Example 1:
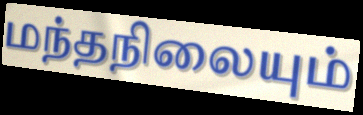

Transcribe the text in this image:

மந்தநிலையும்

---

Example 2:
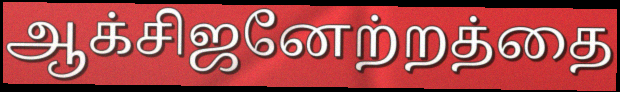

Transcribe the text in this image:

ஆக்சிஜனேற்றத்தை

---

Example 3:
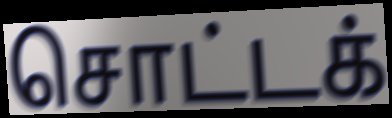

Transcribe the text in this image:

சொட்டக்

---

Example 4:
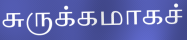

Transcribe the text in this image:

சுருக்கமாகச்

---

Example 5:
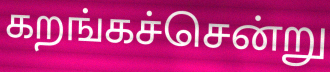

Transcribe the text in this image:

கறங்கச்சென்று